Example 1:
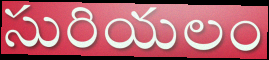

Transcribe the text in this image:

సురియలం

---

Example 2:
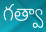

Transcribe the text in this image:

గత్వా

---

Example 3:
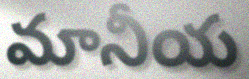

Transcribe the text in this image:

మానీయ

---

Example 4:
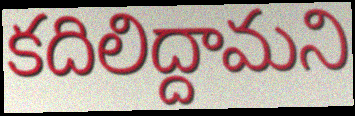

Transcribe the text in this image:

కదిలిద్దామని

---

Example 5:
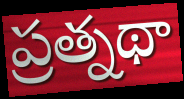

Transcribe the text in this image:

ప్రత్నథా